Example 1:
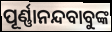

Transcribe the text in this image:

ପୂର୍ଣ୍ଣାନନ୍ଦବାବୁଙ୍କ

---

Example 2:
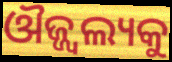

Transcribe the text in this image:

ଔଜ୍ଜ୍ଵଲ୍ୟକୁ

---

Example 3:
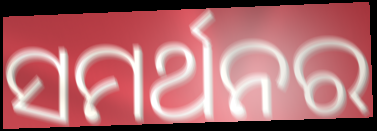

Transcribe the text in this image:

ସମର୍ଥନର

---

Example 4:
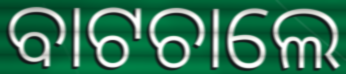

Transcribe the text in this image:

ବାଟଚାଲେ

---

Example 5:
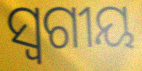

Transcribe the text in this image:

ସ୍ୱଗୀୟ